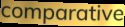
comparative